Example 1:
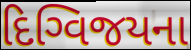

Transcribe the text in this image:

દિગ્વિજયના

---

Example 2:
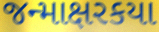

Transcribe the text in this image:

જન્માક્ષરકયા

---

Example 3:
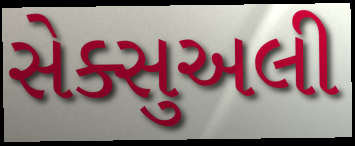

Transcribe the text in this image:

સેક્સુઅલી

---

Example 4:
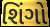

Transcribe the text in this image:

શિંગો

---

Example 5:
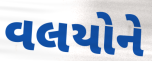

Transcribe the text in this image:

વલયોને